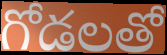
గోడలతో